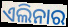
ଏଲିନାର